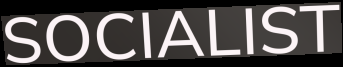
SOCIALIST